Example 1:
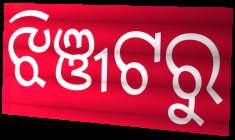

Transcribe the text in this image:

ଝିଞ୍ଜଟରୁ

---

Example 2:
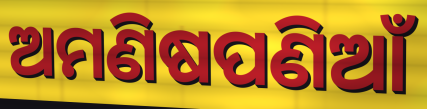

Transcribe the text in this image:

ଅମଣିଷପଣିଆଁ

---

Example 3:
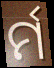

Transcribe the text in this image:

ର୍ମ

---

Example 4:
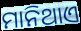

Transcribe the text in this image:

ମାନିଥାଏ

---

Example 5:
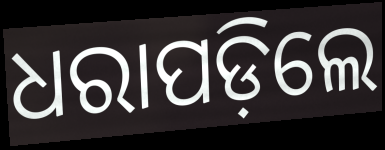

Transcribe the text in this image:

ଧରାପଡ଼ିଲେ